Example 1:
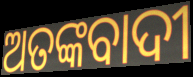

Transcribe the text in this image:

ଅତଙ୍କବାଦୀ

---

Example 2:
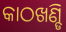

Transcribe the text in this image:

କାଠଖଣ୍ଡି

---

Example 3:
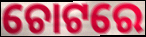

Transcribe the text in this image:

ଚୋଟରେ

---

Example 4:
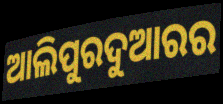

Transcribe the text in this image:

ଆଲିପୁରଦୁଆରର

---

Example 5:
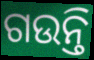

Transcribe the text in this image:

ଗଉନ୍ତି